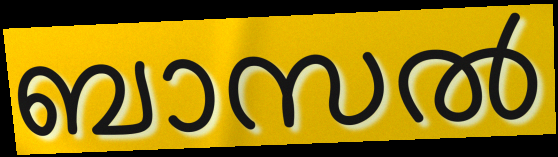
ബാസൽ